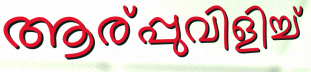
ആര്പ്പുവിളിച്ച്